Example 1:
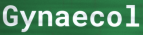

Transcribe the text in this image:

Gynaecol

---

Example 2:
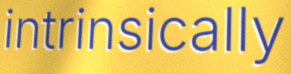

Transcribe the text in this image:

intrinsically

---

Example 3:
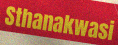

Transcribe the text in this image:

Sthanakwasi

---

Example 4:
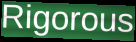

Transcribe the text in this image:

Rigorous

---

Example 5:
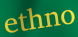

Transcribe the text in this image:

ethno